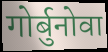
गोर्बुनोवा